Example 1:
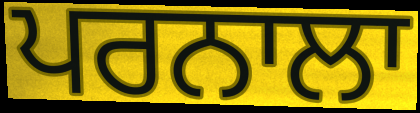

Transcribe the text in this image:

ਪਰਨਾਲਾ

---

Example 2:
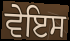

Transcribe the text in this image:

ਵੇਇਸ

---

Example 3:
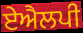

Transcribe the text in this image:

ਏਐਲਪੀ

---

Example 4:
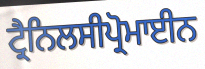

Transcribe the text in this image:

ਟ੍ਰੈਨਿਲਸੀਪ੍ਰੋਮਾਈਨ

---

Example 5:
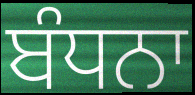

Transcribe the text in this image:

ਬੰਧਨਾ